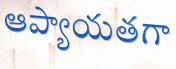
ఆప్యాయతగా